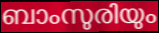
ബാംസുരിയും